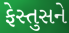
ફેસ્તુસને